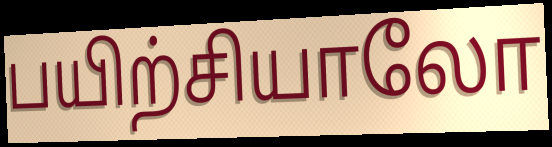
பயிற்சியாலோ